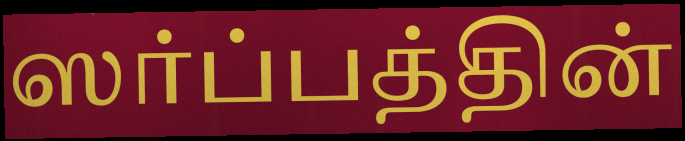
ஸர்ப்பத்தின்